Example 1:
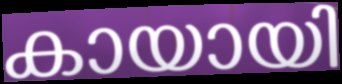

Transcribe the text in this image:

കായായി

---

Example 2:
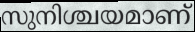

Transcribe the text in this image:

സുനിശ്ചയമാണ്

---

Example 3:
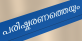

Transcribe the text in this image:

പരിഷ്കരണത്തെയും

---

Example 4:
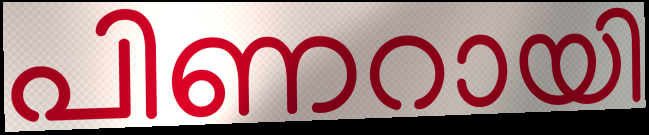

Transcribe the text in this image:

പിണറായി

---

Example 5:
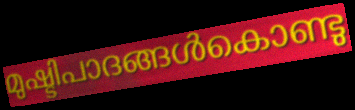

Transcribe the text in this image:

മുഷ്ടിപാദങ്ങൾകൊണ്ടു